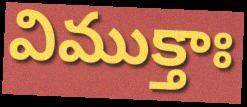
విముక్తాః